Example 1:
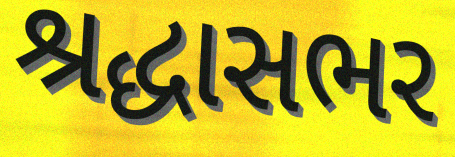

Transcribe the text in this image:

શ્રદ્ધાસભર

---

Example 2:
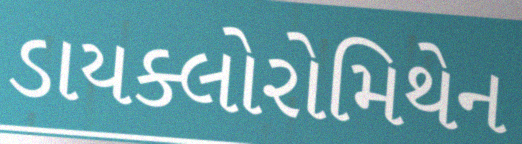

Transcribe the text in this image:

ડાયક્લોરોમિથેન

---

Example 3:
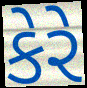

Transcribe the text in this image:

કેરે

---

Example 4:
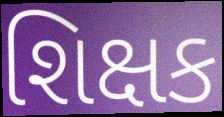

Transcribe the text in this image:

શિક્ષક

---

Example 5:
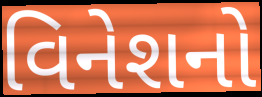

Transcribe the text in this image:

વિનેશનો